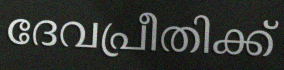
ദേവപ്രീതിക്ക്